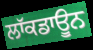
ਲਾੱਕਡਾਊਨ